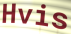
Hvis